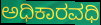
ಅಧಿಕಾರವಧಿ